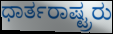
ಧಾರ್ತರಾಷ್ಟ್ರರು